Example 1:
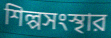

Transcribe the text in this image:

শিল্পসংস্থার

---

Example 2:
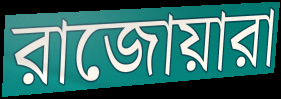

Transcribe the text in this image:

রাজোয়ারা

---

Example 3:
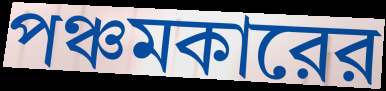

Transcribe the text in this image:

পঞ্চমকারের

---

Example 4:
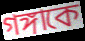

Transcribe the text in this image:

গঙ্গাকে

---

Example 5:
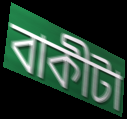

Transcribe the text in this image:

বাকীটা